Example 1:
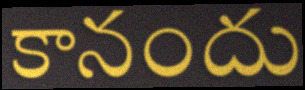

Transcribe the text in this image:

కానందు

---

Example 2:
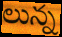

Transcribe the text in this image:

లున్న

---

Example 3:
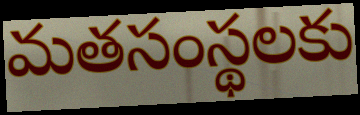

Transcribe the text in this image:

మతసంస్థలకు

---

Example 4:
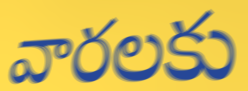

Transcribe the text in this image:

వారలకు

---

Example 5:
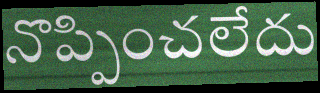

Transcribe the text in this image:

నొప్పించలేదు